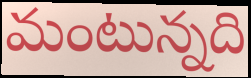
మంటున్నది